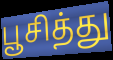
பூசித்து